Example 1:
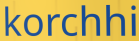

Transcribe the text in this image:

korchhi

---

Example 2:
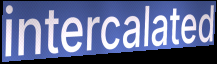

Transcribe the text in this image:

intercalated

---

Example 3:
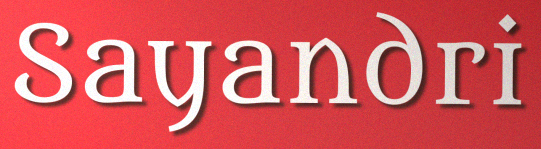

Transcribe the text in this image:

Sayandri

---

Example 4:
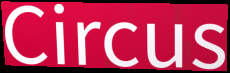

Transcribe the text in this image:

Circus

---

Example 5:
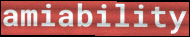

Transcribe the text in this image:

amiability